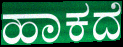
ಹಾಕದೆ